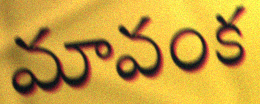
మావంక